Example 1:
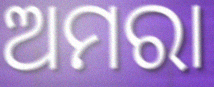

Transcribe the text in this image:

ଅମରା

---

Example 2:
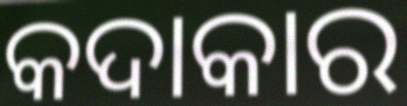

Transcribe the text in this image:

କଦାକାର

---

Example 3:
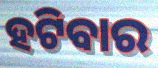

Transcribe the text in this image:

ହଟିବାର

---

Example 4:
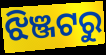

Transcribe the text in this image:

ଝିଞ୍ଜଟରୁ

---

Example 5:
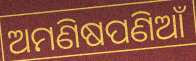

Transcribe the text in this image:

ଅମଣିଷପଣିଆଁ